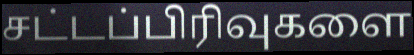
சட்டப்பிரிவுகளை